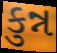
કુન્ન